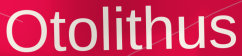
Otolithus